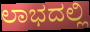
ಲಾಭದಲ್ಲಿ